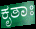
ಕೃತಾಃ